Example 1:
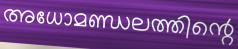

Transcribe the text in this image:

അധോമണ്ഡലത്തിന്റെ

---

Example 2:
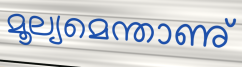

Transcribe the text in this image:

മൂല്യമെന്താണു്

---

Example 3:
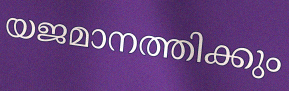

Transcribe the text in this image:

യജമാനത്തിക്കും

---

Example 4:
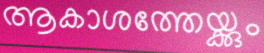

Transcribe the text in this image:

ആകാശത്തേയ്ക്കും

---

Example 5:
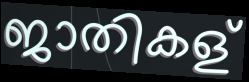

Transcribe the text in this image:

ജാതികള്